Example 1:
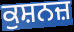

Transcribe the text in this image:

ਕੁਸ਼ਨਜ਼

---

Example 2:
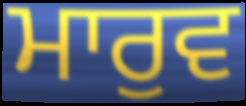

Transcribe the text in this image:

ਮਾਰੁਵ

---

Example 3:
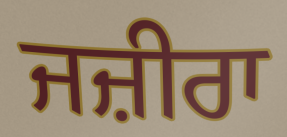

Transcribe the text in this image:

ਜਜ਼ੀਰਾ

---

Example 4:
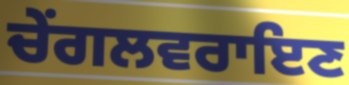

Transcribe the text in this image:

ਚੇਂਗਲਵਰਾਇਣ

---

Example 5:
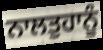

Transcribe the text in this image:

ਨਾਲਤੁਹਾਨੂੰ